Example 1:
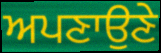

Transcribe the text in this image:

ਅਪਣਾਉਣੇ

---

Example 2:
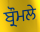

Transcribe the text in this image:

ਬ੍ਰੌਮਲੇ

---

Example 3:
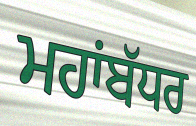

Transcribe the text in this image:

ਮਹਾਂਬੱਧਰ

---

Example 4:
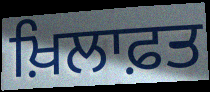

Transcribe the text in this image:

ਖ਼ਿਲਾਫ਼ਤ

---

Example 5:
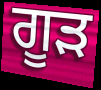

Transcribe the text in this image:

ਗੂੜ